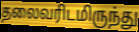
தலைவரிடமிருந்து